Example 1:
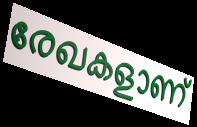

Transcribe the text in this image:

രേഖകളാണ്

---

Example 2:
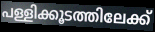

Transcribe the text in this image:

പള്ളിക്കൂടത്തിലേക്ക്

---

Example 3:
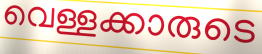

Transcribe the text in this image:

വെള്ളക്കാരുടെ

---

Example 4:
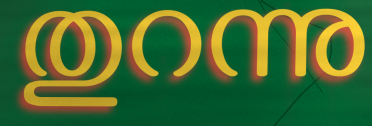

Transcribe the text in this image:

തുറന്നു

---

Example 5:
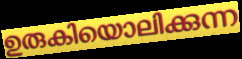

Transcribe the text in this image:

ഉരുകിയൊലിക്കുന്ന